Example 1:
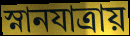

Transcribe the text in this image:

স্নানযাত্রায়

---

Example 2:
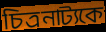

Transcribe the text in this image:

চিত্রনাট্যকে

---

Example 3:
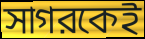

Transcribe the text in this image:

সাগরকেই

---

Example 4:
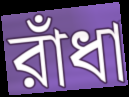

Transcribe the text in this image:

রাঁধা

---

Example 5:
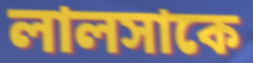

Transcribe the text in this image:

লালসাকে